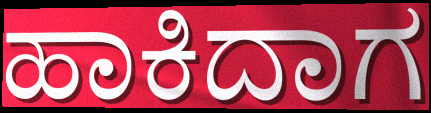
ಹಾಕಿದಾಗ